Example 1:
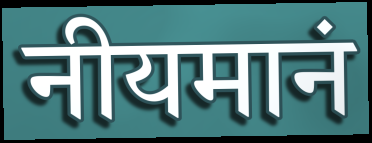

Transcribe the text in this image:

नीयमानं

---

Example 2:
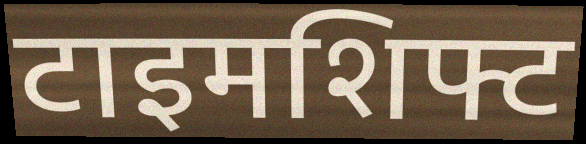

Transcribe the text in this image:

टाइमशिफ्ट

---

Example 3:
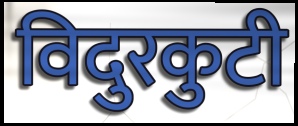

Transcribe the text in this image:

विदुरकुटी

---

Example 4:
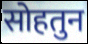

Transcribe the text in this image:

सोहतुन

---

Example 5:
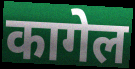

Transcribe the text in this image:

कागेल